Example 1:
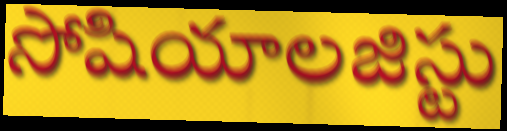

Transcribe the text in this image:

సోషియాలజిస్టు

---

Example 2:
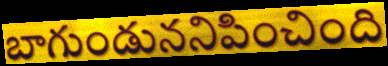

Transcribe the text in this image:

బాగుండుననిపించింది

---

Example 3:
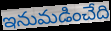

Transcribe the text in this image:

ఇనుమడించేది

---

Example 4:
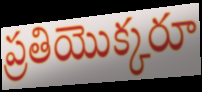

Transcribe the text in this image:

ప్రతియొక్కరూ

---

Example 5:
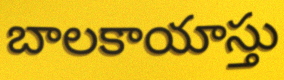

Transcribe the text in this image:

బాలకాయాస్తు